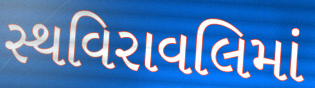
સ્થવિરાવલિમાં